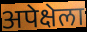
अपेक्षेला